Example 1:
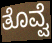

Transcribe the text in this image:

ತೊವ್ವೆ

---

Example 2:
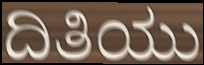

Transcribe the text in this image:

ದಿತಿಯು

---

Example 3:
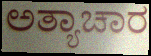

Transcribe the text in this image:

ಅತ್ಯಾಚಾರ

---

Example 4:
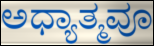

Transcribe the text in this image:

ಅಧ್ಯಾತ್ಮವೂ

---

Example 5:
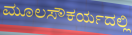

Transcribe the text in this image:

ಮೂಲಸೌಕರ್ಯದಲ್ಲಿ